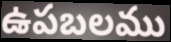
ఉపబలము